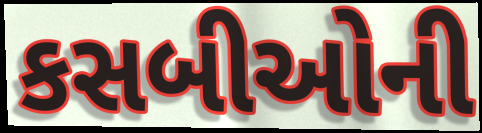
કસબીઓની